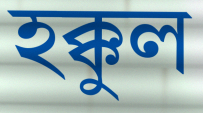
হক্কুল